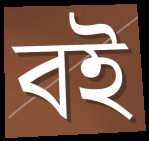
বই